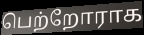
பெற்றோராக